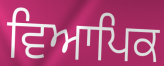
ਵਿਆਪਿਕ